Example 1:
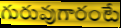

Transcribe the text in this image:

గురువుగారంటే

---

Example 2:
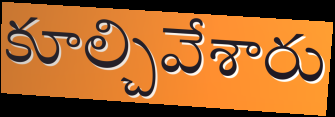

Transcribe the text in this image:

కూల్చివేశారు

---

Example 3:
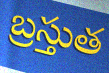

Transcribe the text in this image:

బ్రస్తుత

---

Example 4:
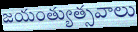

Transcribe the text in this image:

జయంత్యుత్సవాలు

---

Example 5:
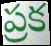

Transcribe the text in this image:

ప్రక